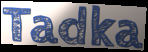
Tadka